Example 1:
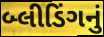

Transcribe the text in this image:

બ્લીડિંગનું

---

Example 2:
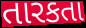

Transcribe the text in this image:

તારકતા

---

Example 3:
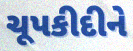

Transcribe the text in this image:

ચૂપકીદીને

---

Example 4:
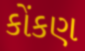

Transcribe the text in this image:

કોંકણ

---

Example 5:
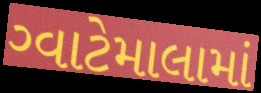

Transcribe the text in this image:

ગ્વાટેમાલામાં